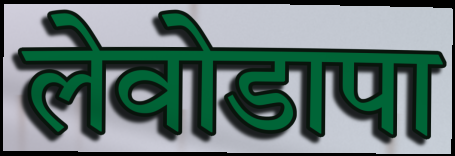
लेवोडापा